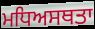
ਮਧਿਅਸਥਤਾ